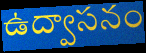
ఉద్వాసనం